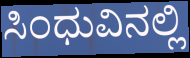
ಸಿಂಧುವಿನಲ್ಲಿ